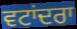
ਵਟਾਂਦਰਾ